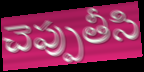
చెప్పుతీసి